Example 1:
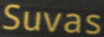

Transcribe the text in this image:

Suvas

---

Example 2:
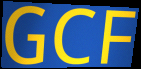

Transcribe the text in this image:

GCF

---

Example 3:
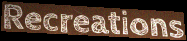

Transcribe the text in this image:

Recreations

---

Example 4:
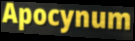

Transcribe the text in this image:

Apocynum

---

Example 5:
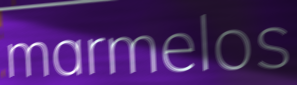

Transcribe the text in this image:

marmelos